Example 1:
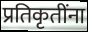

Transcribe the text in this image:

प्रतिकृतींना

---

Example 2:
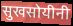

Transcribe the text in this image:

सुखसोयीनी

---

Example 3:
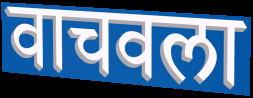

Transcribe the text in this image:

वाचवला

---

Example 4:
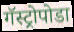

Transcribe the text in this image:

गॅस्ट्रोपोडा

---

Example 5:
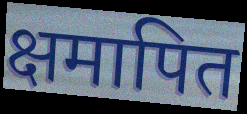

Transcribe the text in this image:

क्षमापित